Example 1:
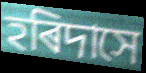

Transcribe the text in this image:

হৰিদাসে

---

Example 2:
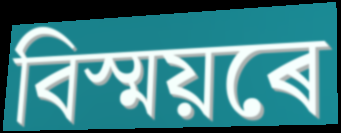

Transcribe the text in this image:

বিস্ময়ৰে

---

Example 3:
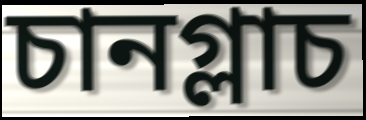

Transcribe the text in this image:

চানগ্লাচ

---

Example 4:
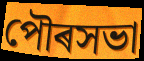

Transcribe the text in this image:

পৌৰসভা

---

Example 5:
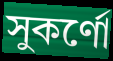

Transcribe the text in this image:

সুকৰ্ণো